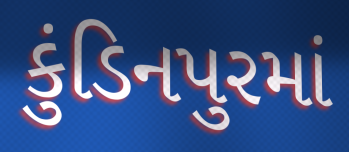
કુંડિનપુરમાં